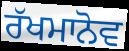
ਰੱਖਮਾਨੋਵ